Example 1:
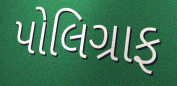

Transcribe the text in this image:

પોલિગ્રાફ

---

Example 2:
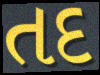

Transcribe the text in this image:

તદ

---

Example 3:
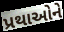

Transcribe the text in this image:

પ્રથાઓને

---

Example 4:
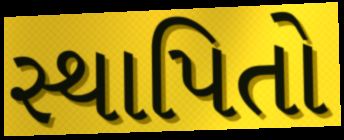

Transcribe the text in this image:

સ્થાપિતો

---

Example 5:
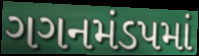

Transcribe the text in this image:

ગગનમંડપમાં